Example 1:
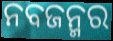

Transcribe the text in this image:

ନବଜନ୍ମର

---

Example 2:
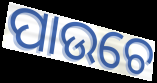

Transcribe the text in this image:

ପାଉଚେ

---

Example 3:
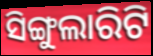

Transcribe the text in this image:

ସିଙ୍ଗୁଲାରିଟି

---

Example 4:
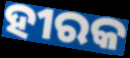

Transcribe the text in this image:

ହୀରକ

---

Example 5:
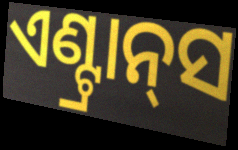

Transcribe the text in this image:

ଏଣ୍ଟ୍ରାନ୍‍ସ